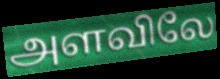
அளவிலே